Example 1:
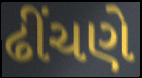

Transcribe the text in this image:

ઢીંચણે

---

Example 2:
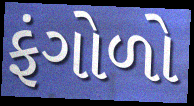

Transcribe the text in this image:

ફંગોળો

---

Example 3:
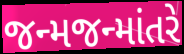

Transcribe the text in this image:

જન્મજન્માંતરે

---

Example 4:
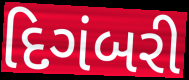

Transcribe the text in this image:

દિગંબરી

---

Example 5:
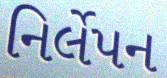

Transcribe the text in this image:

નિર્લેપન